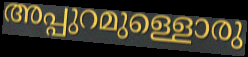
അപ്പുറമുള്ളൊരു